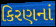
કિરણનાં